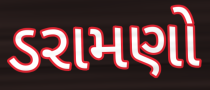
ડરામણો